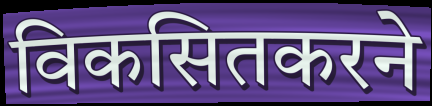
विकसितकरने